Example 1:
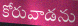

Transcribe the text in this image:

కోరువాడను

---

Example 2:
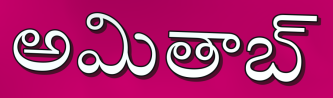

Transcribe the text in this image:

అమితాబ్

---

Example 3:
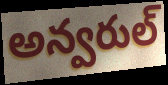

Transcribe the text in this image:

అన్వరుల్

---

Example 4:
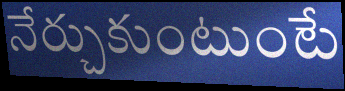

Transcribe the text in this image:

నేర్చుకుంటుంటే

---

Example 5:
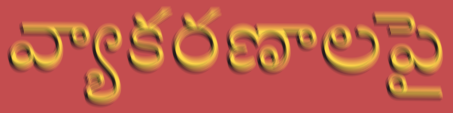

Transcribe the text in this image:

వ్యాకరణాలపై